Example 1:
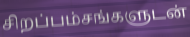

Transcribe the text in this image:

சிறப்பம்சங்களுடன்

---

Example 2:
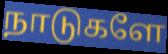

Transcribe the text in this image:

நாடுகளே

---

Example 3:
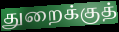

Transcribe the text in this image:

துறைக்குத்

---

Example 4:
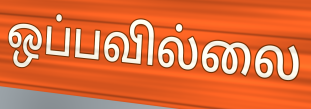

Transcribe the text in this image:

ஒப்பவில்லை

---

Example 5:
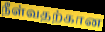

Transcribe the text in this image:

நீள்வதற்கான